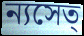
ন্যসেত্